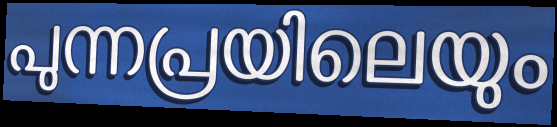
പുന്നപ്രയിലെയും